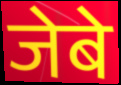
जेबे